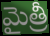
మైత్రీ